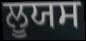
ਲੂਯਸ